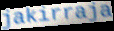
jakirraja